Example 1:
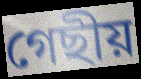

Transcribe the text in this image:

গেছীয়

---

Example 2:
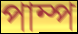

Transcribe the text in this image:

পাম্প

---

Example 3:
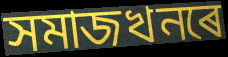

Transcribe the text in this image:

সমাজখনৰে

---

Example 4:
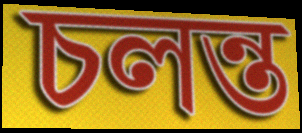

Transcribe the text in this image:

চলন্ত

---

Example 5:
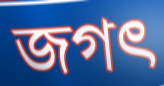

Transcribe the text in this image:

জগৎ